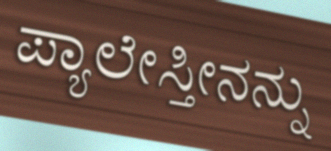
ಪ್ಯಾಲೇಸ್ತೀನನ್ನು